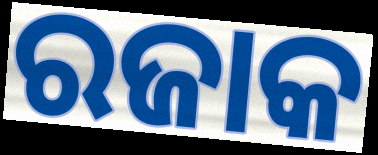
ରଜାକ